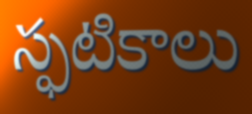
స్ఫటికాలు